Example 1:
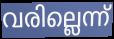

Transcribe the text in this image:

വരില്ലെന്ന്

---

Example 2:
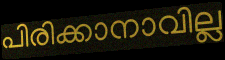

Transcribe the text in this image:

പിരിക്കാനാവില്ല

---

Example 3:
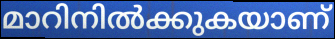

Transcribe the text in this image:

മാറിനിൽക്കുകയാണ്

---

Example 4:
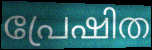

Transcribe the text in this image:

പ്രേഷിത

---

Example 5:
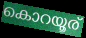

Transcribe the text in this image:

കൊറയൂര്